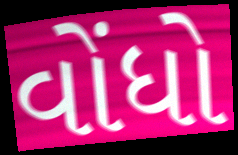
વોંધો